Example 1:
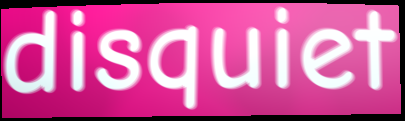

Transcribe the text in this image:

disquiet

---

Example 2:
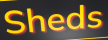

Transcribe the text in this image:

Sheds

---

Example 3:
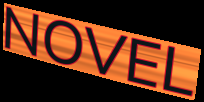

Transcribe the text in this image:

NOVEL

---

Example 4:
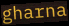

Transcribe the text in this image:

gharna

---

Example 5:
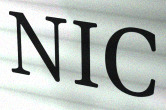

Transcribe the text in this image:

NIC